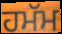
ਹਮੱਮ